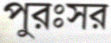
পুরঃসর